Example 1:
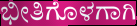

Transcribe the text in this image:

ಭೀತಿಗೊಳಗಾಗಿ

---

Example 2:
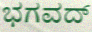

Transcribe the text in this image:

ಭಗವದ್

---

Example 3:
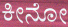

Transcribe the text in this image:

ಕೀನೋ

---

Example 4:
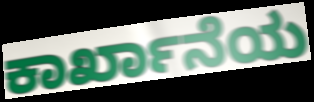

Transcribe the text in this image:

ಕಾರ್ಖಾನೆಯ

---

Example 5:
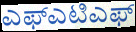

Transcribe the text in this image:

ಎಫ್ಎಟಿಎಫ್